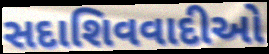
સદાશિવવાદીઓ